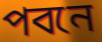
পবনে